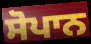
ਸੋਪਾਨ